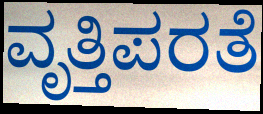
ವೃತ್ತಿಪರತೆ